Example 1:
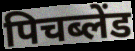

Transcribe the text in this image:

पिचब्लेंड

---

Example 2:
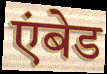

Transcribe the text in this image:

एंबेड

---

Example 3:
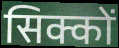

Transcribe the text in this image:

सिक्कों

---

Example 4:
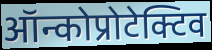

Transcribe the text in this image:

ऑन्कोप्रोटेक्टिव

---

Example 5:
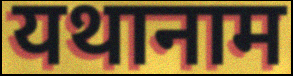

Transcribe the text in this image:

यथानाम